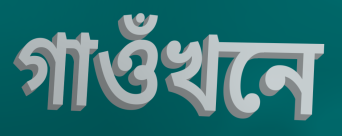
গাওঁখনে